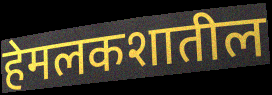
हेमलकशातील